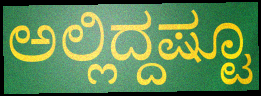
ಅಲ್ಲಿದ್ದಷ್ಟೂ